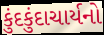
કુંદકુંદાચાર્યનો